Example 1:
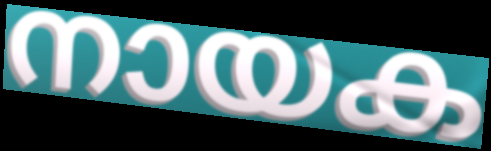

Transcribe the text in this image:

നായക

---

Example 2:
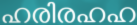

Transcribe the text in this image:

ഹരിരഹഹ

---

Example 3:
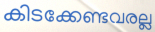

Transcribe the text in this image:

കിടക്കേണ്ടവരല്ല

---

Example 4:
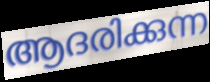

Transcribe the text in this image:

ആദരിക്കുന്ന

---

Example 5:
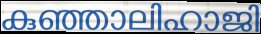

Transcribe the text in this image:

കുഞ്ഞാലിഹാജി